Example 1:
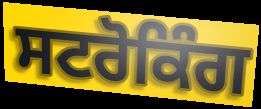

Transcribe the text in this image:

ਸਟਰੋਕਿੰਗ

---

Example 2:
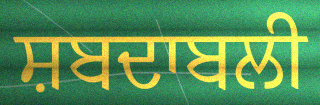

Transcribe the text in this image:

ਸ਼ਬਦਾਬਲੀ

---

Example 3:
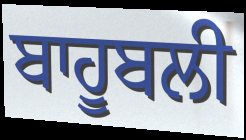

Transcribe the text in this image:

ਬਾਹੂਬਲੀ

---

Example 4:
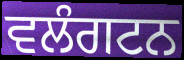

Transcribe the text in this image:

ਵਲੰਗਟਨ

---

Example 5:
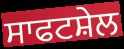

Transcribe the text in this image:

ਸਾਫਟਸ਼ੇਲ